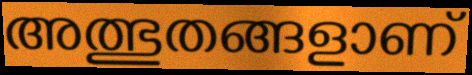
അത്ഭുതങ്ങളാണ്